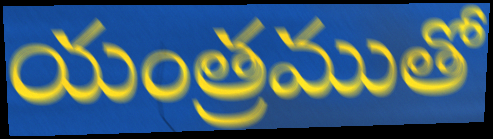
యంత్రముతో